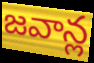
జవాన్ల